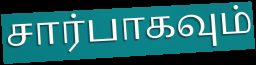
சார்பாகவும்